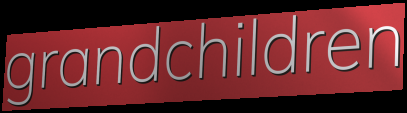
grandchildren